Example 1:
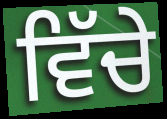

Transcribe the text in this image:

ਵਿੱਚੇ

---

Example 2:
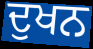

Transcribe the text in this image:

ਦੁਖਨ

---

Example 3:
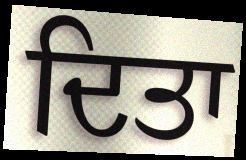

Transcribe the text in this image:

ਦਿਤਾ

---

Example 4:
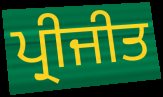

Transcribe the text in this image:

ਪ੍ਰੀਜੀਤ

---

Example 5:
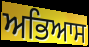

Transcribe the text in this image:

ਅਭਿਆਸ